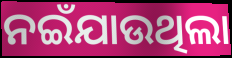
ନଇଁଯାଉଥିଲା